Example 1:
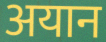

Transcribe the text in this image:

अयान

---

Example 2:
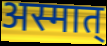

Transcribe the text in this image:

अस्मात्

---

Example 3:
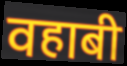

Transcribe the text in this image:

वहाबी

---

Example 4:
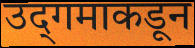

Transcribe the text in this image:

उद्‌गमाकडून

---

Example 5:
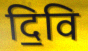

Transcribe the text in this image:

दि॒वि